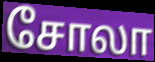
சோலா